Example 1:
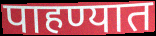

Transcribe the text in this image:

पाहण्यात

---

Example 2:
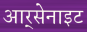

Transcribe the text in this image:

आर्सेनाइट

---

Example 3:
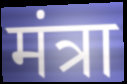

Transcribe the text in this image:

मंत्रा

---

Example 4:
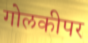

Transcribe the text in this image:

गोलकीपर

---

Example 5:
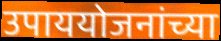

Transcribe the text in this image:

उपाययोजनांच्या